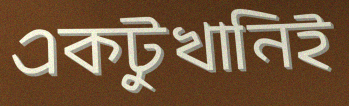
একটুখানিই